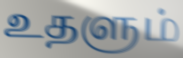
உதளும்